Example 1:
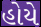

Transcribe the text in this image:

હોયે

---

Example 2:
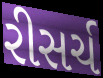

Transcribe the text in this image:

રીસર્ચ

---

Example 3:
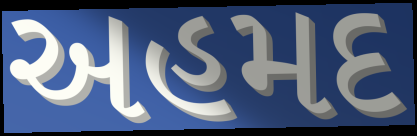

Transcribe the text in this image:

અહમદ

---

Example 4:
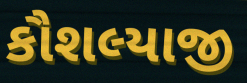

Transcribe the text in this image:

કૌશલ્યાજી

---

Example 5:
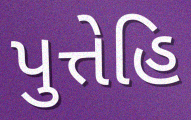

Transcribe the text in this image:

પુત્તેહિ